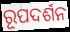
ରୂପଦର୍ଶନ